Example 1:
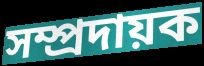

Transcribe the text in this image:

সম্প্ৰদায়ক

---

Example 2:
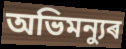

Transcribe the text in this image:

অভিমন্যুৰ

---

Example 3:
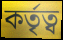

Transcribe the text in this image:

কৰ্তৃত্ব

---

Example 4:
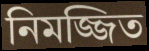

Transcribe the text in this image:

নিমজ্জিত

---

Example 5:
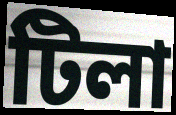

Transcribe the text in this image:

টিলা